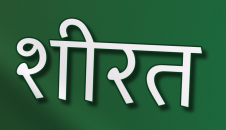
शीरत